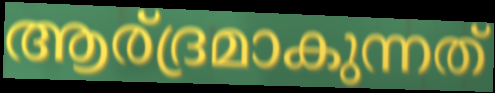
ആര്ദ്രമാകുന്നത്